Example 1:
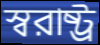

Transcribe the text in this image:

স্বরাষ্ট্র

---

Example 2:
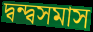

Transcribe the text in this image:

দ্বন্দ্বসমাস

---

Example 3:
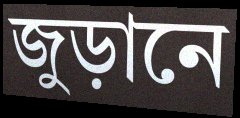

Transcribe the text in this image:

জুড়ানে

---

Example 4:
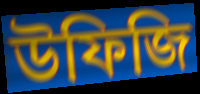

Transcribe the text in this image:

উফিজি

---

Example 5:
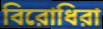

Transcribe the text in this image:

বিরোধিরা